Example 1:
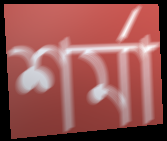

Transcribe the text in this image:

শৰ্মা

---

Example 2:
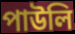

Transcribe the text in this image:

পাউলি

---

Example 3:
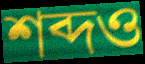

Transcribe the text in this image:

শব্দও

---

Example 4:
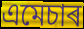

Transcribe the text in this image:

এমেচাৰ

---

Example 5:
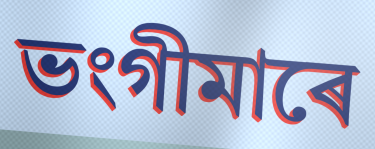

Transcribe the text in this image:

ভংগীমাৰে